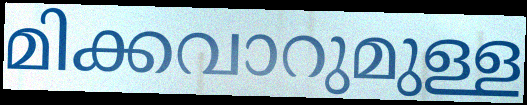
മിക്കവാറുമുള്ള